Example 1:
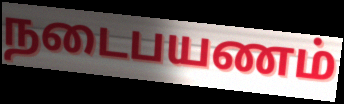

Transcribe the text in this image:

நடைபயணம்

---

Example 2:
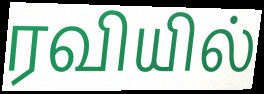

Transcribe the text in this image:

ரவியில்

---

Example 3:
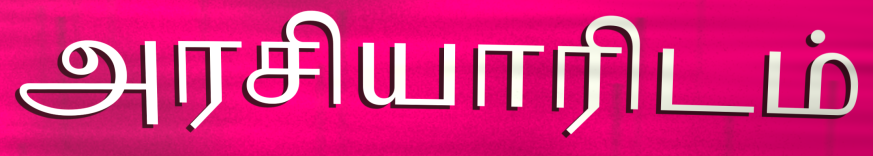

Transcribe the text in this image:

அரசியாரிடம்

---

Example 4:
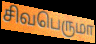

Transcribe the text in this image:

சிவபெருமா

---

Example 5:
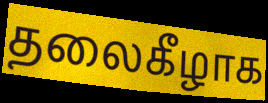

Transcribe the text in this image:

தலைகீழாக